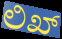
ಲಿಖ್